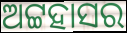
ଅଟ୍ଟହାସର